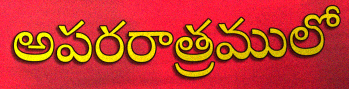
అపరరాత్రములో